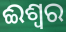
ଈଶ୍ୱର